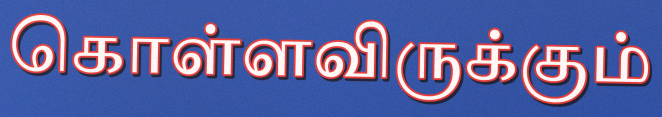
கொள்ளவிருக்கும்